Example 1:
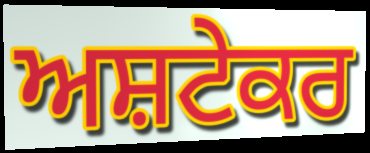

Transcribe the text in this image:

ਅਸ਼ਟੇਕਰ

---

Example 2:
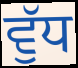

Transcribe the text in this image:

ਵੁੱਧ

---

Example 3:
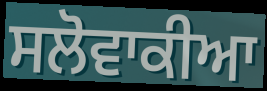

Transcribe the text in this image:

ਸਲੋਵਾਕੀਆ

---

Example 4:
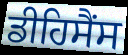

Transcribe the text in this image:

ਡੀਹਿਸੈਂਸ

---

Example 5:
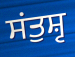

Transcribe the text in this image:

ਸਂਤੁਸ਼੍ਟ